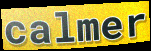
calmer